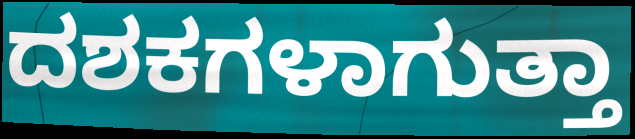
ದಶಕಗಳಾಗುತ್ತಾ